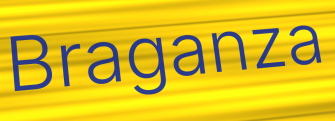
Braganza